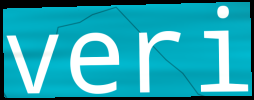
veri